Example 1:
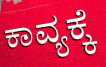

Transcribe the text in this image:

ಕಾವ್ಯಕ್ಕೆ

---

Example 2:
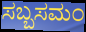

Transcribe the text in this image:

ಸಬ್ಬಸಮಂ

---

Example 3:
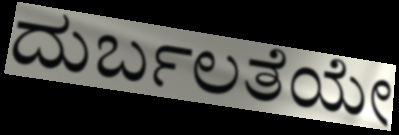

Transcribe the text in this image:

ದುರ್ಬಲತೆಯೇ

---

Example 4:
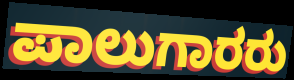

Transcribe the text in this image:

ಪಾಲುಗಾರರು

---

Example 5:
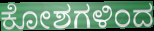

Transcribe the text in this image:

ಕೋಶಗಳಿಂದ